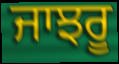
ਜਾਝਰੂ